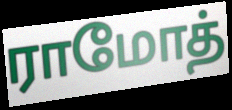
ராமோத்